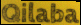
Qilaba